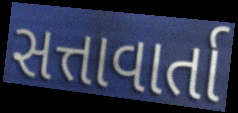
સત્તાવાર્તા